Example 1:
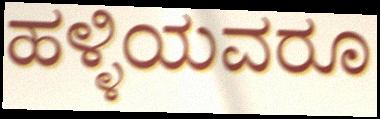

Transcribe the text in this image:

ಹಳ್ಳಿಯವರೂ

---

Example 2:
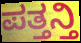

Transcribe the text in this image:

ಪತ್ತನ್ತಿ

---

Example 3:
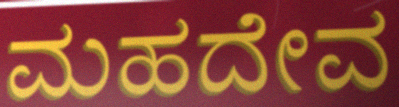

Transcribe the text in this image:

ಮಹದೇವ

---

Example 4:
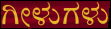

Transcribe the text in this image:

ಗೀಳುಗಳು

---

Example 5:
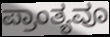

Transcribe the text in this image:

ಪ್ರಾಂತ್ಯವೂ